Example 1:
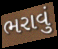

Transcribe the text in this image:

ભરાવું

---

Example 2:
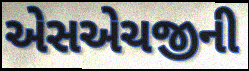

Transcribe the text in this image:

એસએચજીની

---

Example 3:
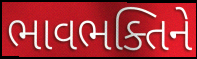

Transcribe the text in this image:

ભાવભક્તિને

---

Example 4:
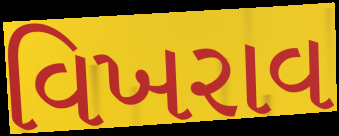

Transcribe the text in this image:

વિખરાવ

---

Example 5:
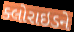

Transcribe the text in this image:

ક્લોરાઇડને